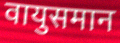
वायुसमान